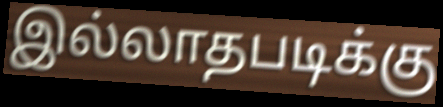
இல்லாதபடிக்கு